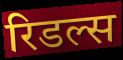
रिडल्स